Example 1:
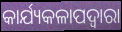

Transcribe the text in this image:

କାର୍ଯ୍ୟକଳାପଦ୍ବାରା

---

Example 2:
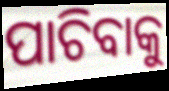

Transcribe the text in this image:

ପାଚିବାକୁ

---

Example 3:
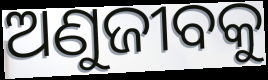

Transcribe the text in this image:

ଅଣୁଜୀବକୁ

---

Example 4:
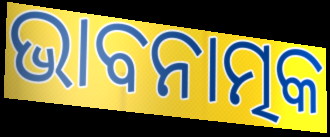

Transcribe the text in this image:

ଭାବନାତ୍ମକ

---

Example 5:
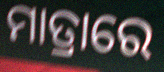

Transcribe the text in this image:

ମାତ୍ରାରେ